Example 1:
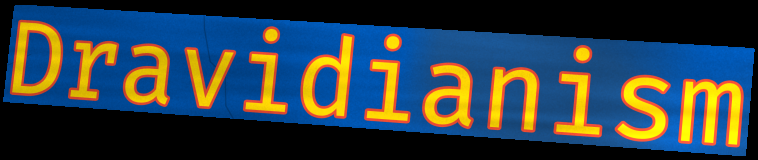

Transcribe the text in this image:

Dravidianism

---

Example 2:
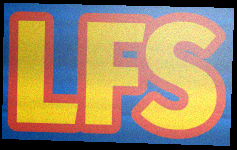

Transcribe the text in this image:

LFS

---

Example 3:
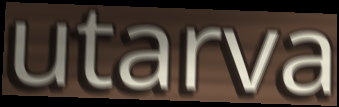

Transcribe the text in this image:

utarva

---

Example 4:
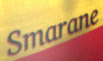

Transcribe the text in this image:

Smarane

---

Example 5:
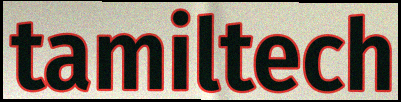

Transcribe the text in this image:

tamiltech